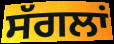
ਸੱਗਲਾਂ